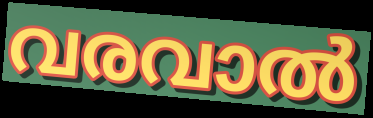
വരവാൽ